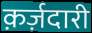
क़र्ज़दारी